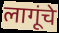
लागूंचे